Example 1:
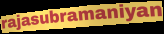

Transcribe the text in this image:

rajasubramaniyan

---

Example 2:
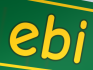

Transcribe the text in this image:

ebi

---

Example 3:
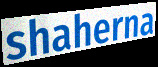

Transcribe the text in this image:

shaherna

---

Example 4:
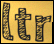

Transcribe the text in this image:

ltr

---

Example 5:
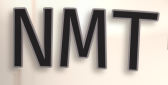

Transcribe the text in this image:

NMT